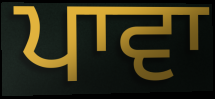
ਪਾਵਾ